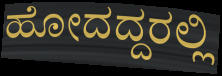
ಹೋದದ್ದರಲ್ಲಿ